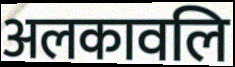
अलकावलि